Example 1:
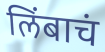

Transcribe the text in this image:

लिंबाचं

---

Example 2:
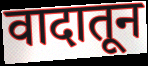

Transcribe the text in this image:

वादातून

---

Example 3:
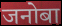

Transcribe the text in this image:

जनोबा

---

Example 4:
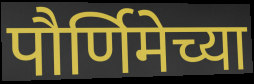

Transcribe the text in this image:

पौर्णिमेच्या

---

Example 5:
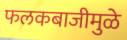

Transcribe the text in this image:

फलकबाजीमुळे